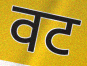
वट